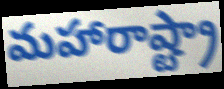
మహారాష్ట్రా